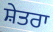
ਸ਼ੇਤਰਾ